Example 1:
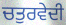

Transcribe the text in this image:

ਚਤੁਰਵੇਦੀ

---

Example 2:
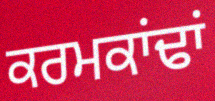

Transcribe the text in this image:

ਕਰਮਕਾਂਢਾਂ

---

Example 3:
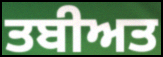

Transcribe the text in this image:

ਤਬੀਅਤ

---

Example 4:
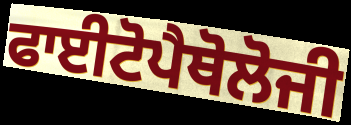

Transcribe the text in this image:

ਫਾਈਟੋਪੈਥੋਲੋਜੀ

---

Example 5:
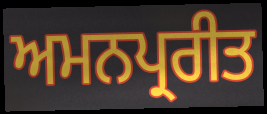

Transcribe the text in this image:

ਅਮਨਪ੍ਰਰੀਤ